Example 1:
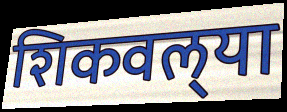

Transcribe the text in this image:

शिकवल्या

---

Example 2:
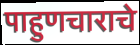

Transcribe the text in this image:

पाहुणचाराचे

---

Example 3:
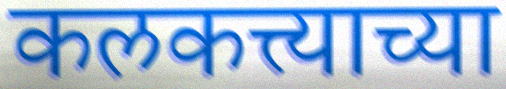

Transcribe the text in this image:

कलकत्त्याच्या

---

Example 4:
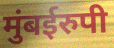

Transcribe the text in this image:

मुंबईरुपी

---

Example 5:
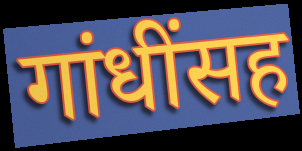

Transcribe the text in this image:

गांधींसह